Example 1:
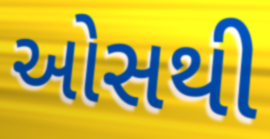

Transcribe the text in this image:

ઓસથી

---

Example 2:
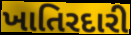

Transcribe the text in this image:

ખાતિરદારી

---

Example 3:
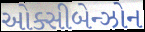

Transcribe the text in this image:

ઓક્સીબેન્ઝોન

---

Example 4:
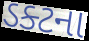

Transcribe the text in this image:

ડક્ટના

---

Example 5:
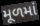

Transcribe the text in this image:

મૂળમાં